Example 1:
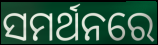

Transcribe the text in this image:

ସମର୍ଥନରେ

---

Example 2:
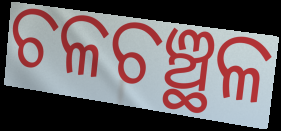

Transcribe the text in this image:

ଚଳଚଞ୍ଛଳ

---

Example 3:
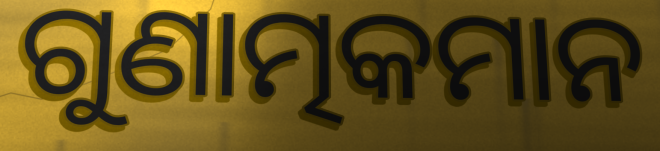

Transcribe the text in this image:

ଗୁଣାତ୍ମକମାନ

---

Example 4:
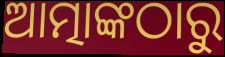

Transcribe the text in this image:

ଆତ୍ମାଙ୍କଠାରୁ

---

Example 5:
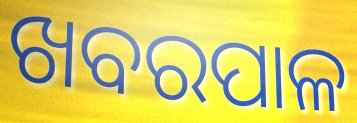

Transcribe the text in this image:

ଖବରପାଳ